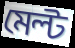
মেল্ট